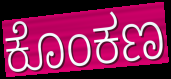
ಕೊಂಕಣ